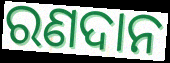
ରଣଦାନ